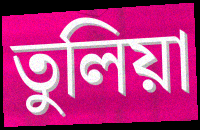
তুলিয়া